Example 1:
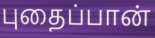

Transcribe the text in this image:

புதைப்பான்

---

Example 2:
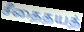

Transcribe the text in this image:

சீதைதயத்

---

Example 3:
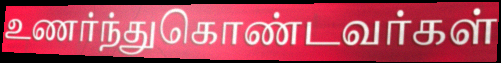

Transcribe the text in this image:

உணர்ந்துகொண்டவர்கள்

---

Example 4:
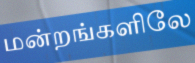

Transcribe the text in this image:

மன்றங்களிலே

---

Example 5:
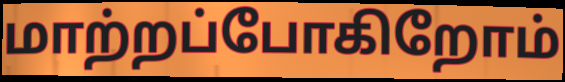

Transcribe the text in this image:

மாற்றப்போகிறோம்